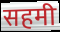
सहमी